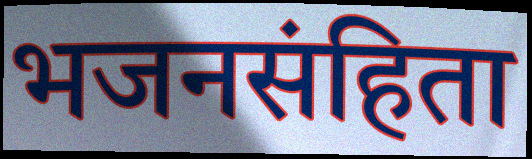
भजनसंहिता